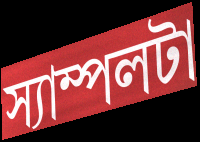
স্যাম্পলটা